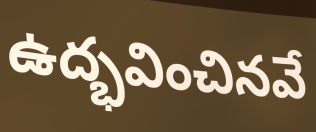
ఉద్భవించినవే